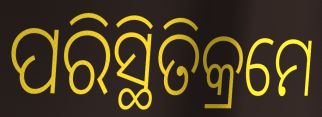
ପରିସ୍ଥିତିକ୍ରମେ